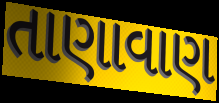
તાણાવાણ